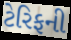
ટેરિફની